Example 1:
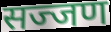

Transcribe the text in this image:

सज्जण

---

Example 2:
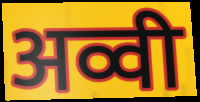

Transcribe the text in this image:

अव्वी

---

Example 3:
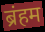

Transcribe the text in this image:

ब्रंहम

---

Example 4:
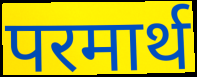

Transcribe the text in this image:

परमार्थ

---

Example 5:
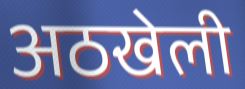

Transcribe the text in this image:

अठखेली